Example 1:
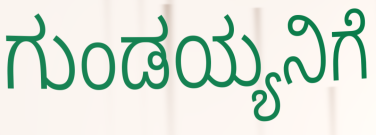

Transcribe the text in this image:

ಗುಂಡಯ್ಯನಿಗೆ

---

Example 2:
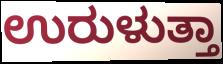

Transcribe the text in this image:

ಉರುಳುತ್ತಾ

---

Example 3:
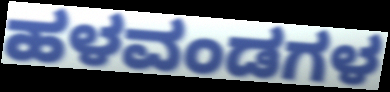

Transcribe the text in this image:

ಹಳವಂಡಗಳ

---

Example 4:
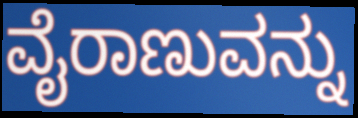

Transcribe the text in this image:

ವೈರಾಣುವನ್ನು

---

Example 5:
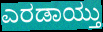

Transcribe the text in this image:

ಎರಡಾಯ್ತು